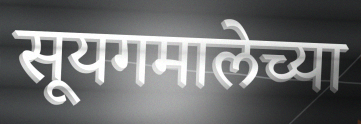
सूयगमालेच्या